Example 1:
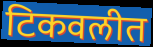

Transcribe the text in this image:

टिकवलीत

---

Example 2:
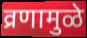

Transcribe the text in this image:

व्रणामुळे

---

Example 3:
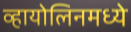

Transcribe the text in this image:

व्हायोलिनमध्ये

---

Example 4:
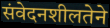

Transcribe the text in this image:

संवेदनशीलतेने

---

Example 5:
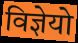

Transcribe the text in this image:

विज्ञेयो